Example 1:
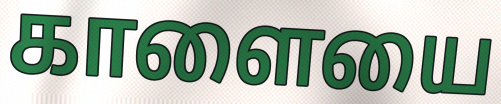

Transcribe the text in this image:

காளையை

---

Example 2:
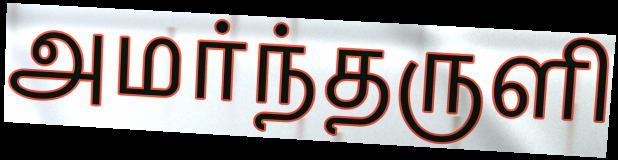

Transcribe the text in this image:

அமர்ந்தருளி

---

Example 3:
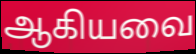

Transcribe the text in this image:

ஆகியவை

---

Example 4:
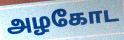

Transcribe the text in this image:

அழகோட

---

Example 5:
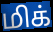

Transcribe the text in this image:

மிக்